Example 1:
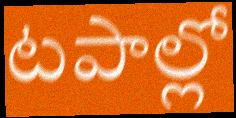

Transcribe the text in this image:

టపాల్లో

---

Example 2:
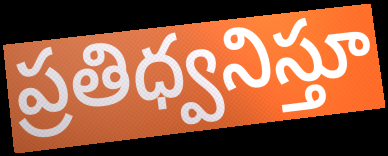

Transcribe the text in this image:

ప్రతిధ్వనిస్తూ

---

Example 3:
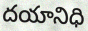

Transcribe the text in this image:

దయానిధి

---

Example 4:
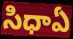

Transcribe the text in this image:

సిధాఏ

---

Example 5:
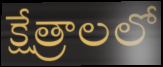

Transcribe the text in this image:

క్షేత్రాలలో